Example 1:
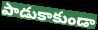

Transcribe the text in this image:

పాడుకాకుండా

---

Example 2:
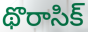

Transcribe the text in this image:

థొరాసిక్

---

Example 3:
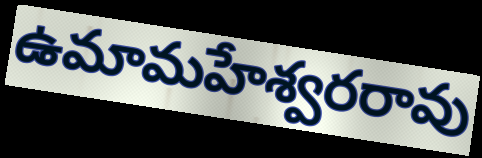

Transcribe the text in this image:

ఉమామహేశ్వరరావు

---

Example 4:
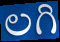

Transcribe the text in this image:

లగి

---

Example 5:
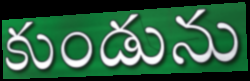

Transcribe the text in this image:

కుండును